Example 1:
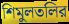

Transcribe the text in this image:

শিমুলতলির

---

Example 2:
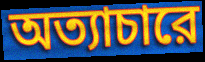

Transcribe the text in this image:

অত্যাচারে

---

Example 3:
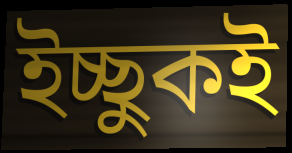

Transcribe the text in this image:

ইচ্ছুকই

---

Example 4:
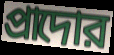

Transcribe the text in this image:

প্রাদোর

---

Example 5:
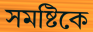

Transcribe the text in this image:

সমষ্টিকে